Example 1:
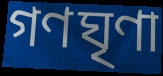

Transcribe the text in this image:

গণঘৃণা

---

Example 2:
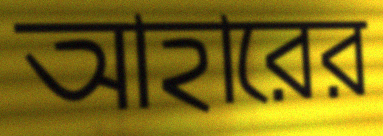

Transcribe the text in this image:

আহারের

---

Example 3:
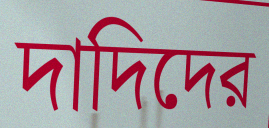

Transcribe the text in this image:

দাদিদের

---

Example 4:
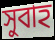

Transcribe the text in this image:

সুবাহ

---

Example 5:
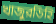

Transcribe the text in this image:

খাজুরডিহি